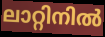
ലാറ്റിനിൽ